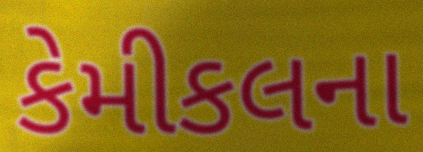
કેમીકલના